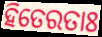
ହିତେରତାଃ